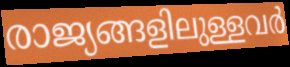
രാജ്യങ്ങളിലുള്ളവർ